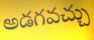
అడగవచ్చు